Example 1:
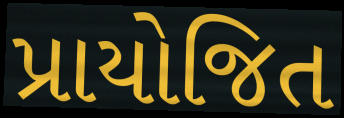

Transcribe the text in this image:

પ્રાયોજિત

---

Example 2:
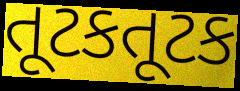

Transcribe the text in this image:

તૂટકતૂટક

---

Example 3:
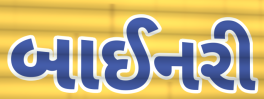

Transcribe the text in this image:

બાઈનરી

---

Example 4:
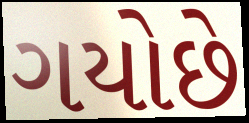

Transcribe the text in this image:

ગયોછે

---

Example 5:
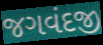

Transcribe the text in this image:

જગવંદજી